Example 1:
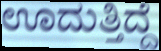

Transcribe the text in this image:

ಊದುತ್ತಿದ್ದೆ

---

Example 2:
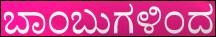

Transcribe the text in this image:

ಬಾಂಬುಗಳಿಂದ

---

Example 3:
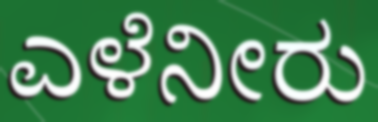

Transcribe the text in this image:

ಎಳೆನೀರು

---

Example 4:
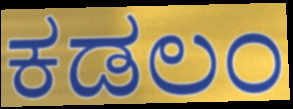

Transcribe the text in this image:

ಕಡಲಂ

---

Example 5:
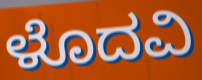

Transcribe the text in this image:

ಳೊದವಿ